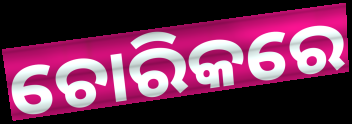
ଚୋରିକରେ